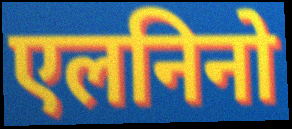
एलनिनो